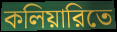
কলিয়ারিতে